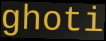
ghoti